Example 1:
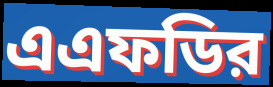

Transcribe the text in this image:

এএফডির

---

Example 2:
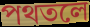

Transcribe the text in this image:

পথতলে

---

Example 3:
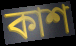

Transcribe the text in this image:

কাশ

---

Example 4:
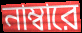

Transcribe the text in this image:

নাম্বারে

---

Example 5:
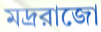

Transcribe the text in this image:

মদ্ররাজো